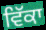
ਵਿੱਕਾ